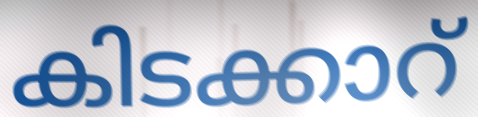
കിടക്കാറ്